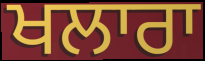
ਖਲਾਰਾ